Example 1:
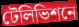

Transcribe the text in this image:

টেলিভিশনে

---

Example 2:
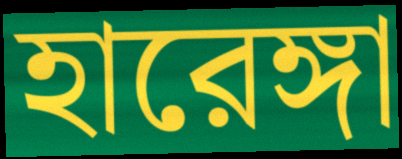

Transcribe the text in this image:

হারেঙ্গা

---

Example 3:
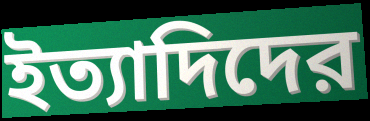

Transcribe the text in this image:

ইত্যাদিদের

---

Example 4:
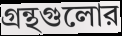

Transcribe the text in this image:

গ্রন্থগুলোর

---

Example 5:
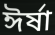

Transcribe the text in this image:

ঈর্ষা